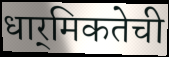
धार्मिकतेची